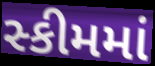
સ્કીમમાં